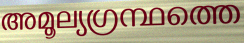
അമൂല്യഗ്രന്ഥത്തെ